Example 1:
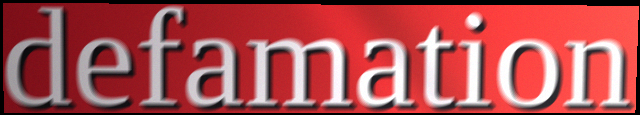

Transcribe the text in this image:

defamation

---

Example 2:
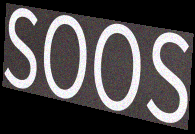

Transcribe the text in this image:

SOOS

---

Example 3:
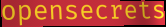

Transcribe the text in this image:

opensecrets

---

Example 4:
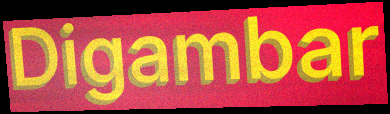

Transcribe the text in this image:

Digambar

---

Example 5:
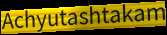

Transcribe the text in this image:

Achyutashtakam